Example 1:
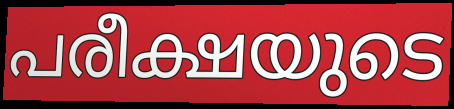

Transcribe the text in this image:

പരീക്ഷയുടെ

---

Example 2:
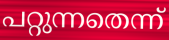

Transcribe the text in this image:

പറ്റുന്നതെന്ന്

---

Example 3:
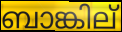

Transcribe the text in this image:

ബാങ്കില്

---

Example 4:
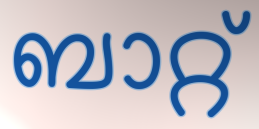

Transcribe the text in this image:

ബാറ്റ്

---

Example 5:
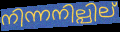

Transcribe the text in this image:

നിന്നനില്പില്